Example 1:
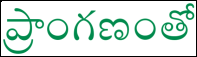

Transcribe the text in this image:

ప్రాంగణంతో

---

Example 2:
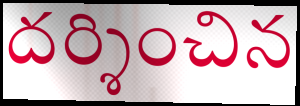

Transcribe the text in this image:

దర్శించిన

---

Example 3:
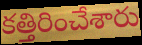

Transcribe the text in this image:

కత్తిరించేశారు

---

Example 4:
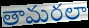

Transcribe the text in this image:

తామరలా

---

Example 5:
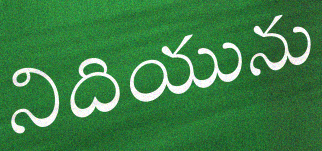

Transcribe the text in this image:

నిదియును